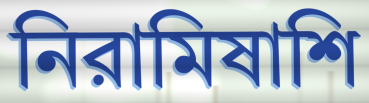
নিরামিষাশি